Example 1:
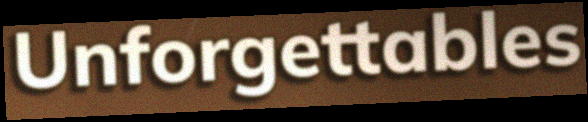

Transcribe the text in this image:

Unforgettables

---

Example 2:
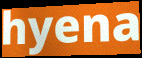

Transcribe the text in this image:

hyena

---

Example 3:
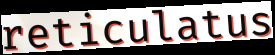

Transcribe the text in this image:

reticulatus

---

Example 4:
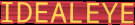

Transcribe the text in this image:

IDEALEYE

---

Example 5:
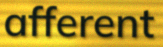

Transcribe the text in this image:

afferent